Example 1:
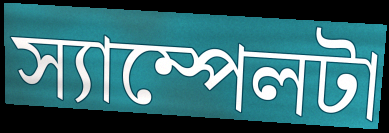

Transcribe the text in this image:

স্যাম্পেলটা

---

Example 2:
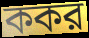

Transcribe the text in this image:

ককর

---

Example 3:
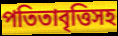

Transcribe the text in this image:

পতিতাবৃত্তিসহ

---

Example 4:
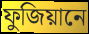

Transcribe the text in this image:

ফুজিয়ানে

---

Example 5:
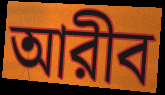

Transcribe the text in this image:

আরীব